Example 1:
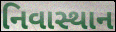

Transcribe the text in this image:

નિવાસ્થાન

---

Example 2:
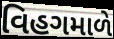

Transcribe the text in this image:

વિહગમાળે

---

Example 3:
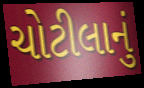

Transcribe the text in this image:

ચોટીલાનું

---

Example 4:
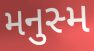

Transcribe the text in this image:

મનુસ્મ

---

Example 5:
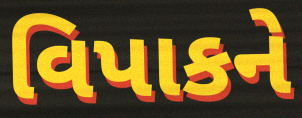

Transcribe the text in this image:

વિપાકને